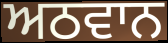
ਅਠਵਾਨ